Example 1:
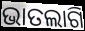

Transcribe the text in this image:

ଭାତଲାଗି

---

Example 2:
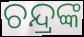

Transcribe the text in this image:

ଚନ୍ଦ୍ରଙ୍କ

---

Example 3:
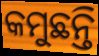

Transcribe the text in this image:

କମୁଛନ୍ତି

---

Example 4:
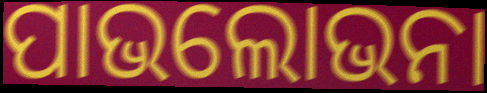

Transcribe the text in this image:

ପାଭଲୋଭନା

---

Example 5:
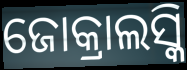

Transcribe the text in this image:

ଜୋକ୍ରାଲସ୍କି